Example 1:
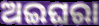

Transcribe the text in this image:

ଅଇଘରା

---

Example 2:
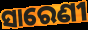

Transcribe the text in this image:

ସାରେଣୀ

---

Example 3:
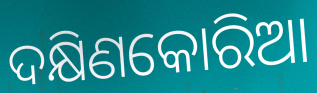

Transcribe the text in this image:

ଦକ୍ଷିଣକୋରିଆ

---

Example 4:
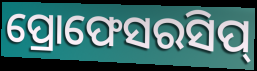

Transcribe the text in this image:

ପ୍ରୋଫେସରସିପ୍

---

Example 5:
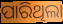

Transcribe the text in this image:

ପାରିଥିଲା